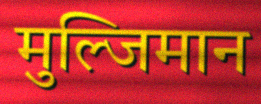
मुल्जिमान